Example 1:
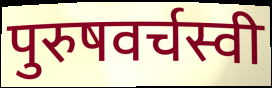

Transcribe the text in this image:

पुरुषवर्चस्वी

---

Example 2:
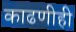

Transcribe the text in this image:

काढणीही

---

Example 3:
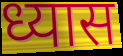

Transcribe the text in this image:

ध्यास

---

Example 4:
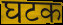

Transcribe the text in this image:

घटक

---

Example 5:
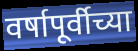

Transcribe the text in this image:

वर्षापूर्वीच्या